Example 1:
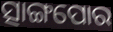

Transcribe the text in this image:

ତ୍ସାଙ୍ଗପୋର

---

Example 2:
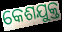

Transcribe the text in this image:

କେଶଯୁକ୍ତ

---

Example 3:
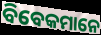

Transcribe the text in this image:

ବିବେକମାନେ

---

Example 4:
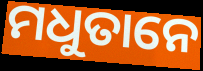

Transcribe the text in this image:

ମଧୁତାନେ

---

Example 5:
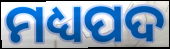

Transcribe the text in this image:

ମଧ୍ୟପଦ